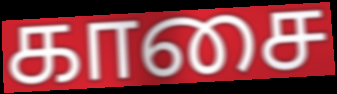
காசை